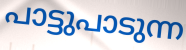
പാട്ടുപാടുന്ന